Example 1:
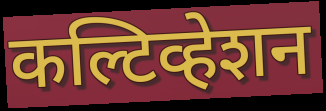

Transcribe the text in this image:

कल्टिव्हेशन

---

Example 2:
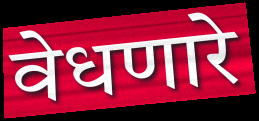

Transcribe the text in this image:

वेधणारे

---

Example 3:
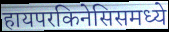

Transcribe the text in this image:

हायपरकिनेसिसमध्ये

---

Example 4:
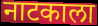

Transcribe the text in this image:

नाटकाला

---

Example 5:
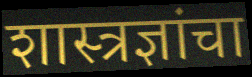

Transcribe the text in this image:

शास्त्रज्ञांचा